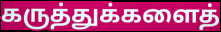
கருத்துக்களைத்